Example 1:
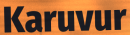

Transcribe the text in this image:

Karuvur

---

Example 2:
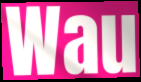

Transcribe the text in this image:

Wau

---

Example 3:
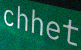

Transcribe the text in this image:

chhet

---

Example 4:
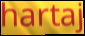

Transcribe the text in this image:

hartaj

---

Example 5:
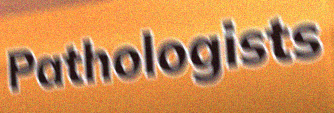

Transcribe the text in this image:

Pathologists